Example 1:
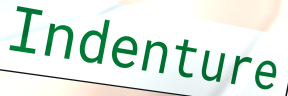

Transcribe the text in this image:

Indenture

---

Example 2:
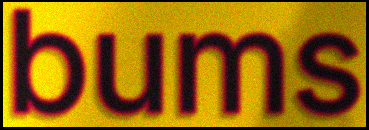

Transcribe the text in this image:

bums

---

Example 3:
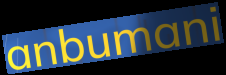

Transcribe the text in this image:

anbumani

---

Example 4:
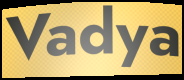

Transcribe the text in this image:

Vadya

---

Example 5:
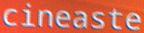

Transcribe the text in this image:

cineaste